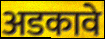
अडकावे